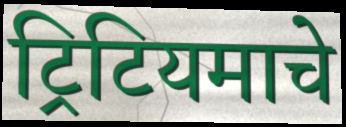
ट्रिटियमाचे